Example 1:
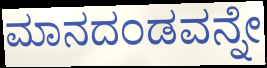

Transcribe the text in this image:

ಮಾನದಂಡವನ್ನೇ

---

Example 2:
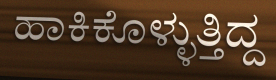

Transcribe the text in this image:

ಹಾಕಿಕೊಳ್ಳುತ್ತಿದ್ದ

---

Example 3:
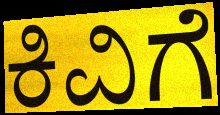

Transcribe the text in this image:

ಕಿವಿಗೆ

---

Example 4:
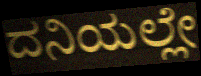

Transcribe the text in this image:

ದನಿಯಲ್ಲೇ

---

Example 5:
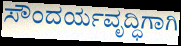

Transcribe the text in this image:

ಸೌಂದರ್ಯವೃದ್ಧಿಗಾಗಿ